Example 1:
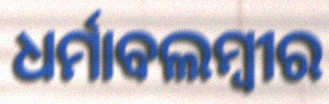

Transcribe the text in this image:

ଧର୍ମାବଲମ୍ବୀର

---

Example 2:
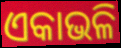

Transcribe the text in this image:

ଏକାଭଳି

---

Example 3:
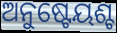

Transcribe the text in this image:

ଅନୁଷ୍ଟେୟଶ୍ଚ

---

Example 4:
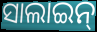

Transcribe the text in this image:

ସାଲାଇନ୍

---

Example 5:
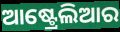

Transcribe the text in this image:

ଆଷ୍ଟ୍ରେଲିଆର